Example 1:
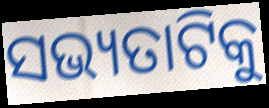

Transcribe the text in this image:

ସଭ୍ୟତାଟିକୁ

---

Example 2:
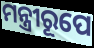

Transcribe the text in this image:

ମନ୍ତ୍ରୀରୂପେ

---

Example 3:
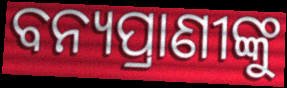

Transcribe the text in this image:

ବନ୍ୟପ୍ରାଣୀଙ୍କୁ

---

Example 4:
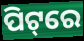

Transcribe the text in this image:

ପିଟ୍‌ରେ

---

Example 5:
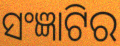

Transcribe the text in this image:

ସଂଜ୍ଞାଟିର